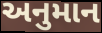
અનુમાન